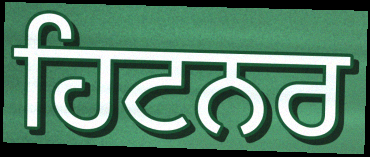
ਹਿਟਨਰ